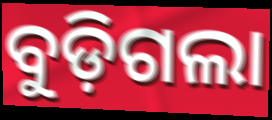
ବୁଡ଼ିଗଲା